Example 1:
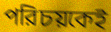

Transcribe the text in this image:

পরিচয়কেই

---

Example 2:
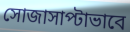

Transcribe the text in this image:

সোজাসাপ্টাভাবে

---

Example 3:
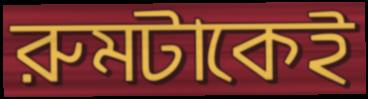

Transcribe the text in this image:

রুমটাকেই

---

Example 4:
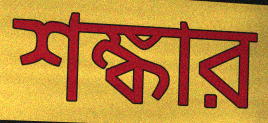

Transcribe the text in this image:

শঙ্কার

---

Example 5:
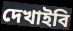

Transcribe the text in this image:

দেখাইবি